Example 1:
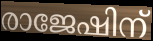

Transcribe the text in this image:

രാജേഷിന്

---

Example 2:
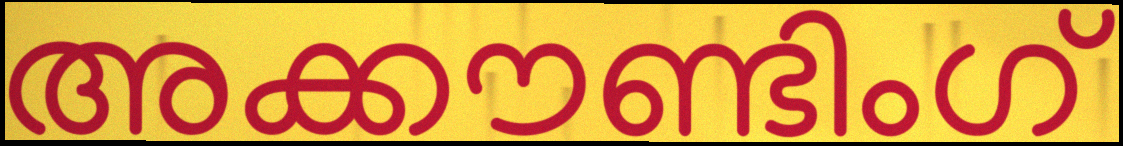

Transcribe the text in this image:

അക്കൗണ്ടിംഗ്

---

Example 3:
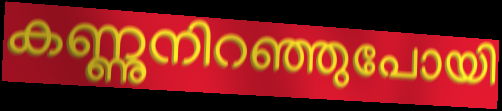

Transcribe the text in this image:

കണ്ണുനിറഞ്ഞുപോയി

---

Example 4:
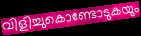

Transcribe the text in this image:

വിളിച്ചുകൊണ്ടോടുകയും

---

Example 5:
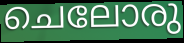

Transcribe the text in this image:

ചെലോരു